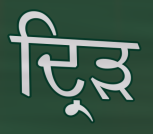
ਦ੍ਰਿੜ